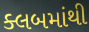
ક્લબમાંથી